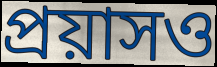
প্রয়াসও